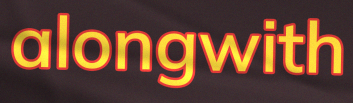
alongwith